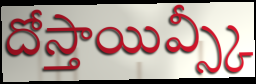
దోస్తాయివ్స్కీ